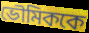
ভৌমিককে